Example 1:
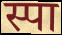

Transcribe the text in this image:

स्पा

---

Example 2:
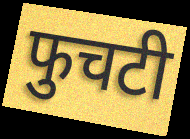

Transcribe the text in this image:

फुचटी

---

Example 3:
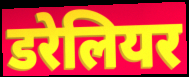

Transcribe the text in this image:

डरेलियर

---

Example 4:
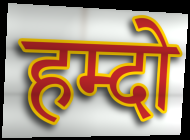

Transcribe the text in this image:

हम्दो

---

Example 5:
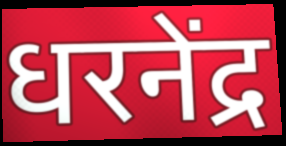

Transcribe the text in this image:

धरनेंद्र